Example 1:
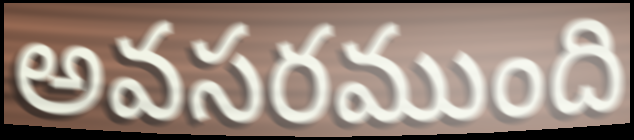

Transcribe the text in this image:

అవసరముంది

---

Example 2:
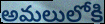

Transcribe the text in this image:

అమలులోకి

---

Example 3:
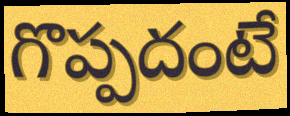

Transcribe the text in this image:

గొప్పదంటే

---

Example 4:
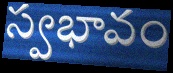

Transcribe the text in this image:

స్వభావం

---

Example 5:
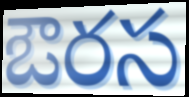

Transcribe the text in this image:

ఔరస